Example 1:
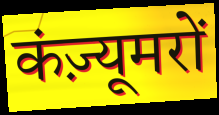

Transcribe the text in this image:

कंज़्यूमरों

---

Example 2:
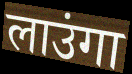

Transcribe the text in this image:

लाउंगा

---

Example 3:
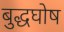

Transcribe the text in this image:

बुद्धघोष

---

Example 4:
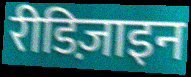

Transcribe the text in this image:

रीडिज़ाइन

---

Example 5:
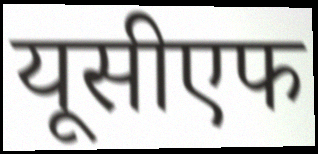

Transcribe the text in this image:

यूसीएफ